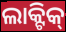
ଲାକ୍ଟିକ୍